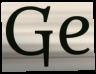
Ge